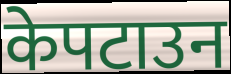
केपटाउन